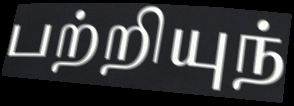
பற்றியுந்